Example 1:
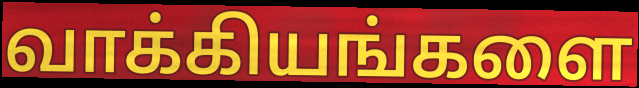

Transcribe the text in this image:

வாக்கியங்களை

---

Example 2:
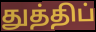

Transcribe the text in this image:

துத்திப்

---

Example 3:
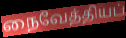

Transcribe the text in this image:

நைவேத்தியப்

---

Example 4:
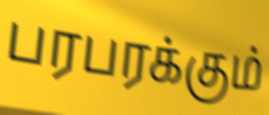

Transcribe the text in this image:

பரபரக்கும்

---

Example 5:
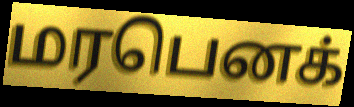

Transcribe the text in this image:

மரபெனக்